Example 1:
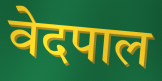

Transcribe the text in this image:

वेदपाल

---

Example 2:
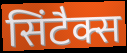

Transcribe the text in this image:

सिंटैक्स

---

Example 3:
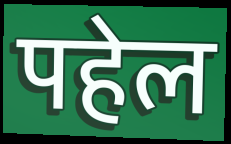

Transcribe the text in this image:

पहेल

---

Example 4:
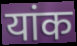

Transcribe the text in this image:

यांक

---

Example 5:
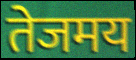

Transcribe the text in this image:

तेजमय